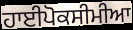
ਹਾਈਪੋਕਸੀਮੀਆ